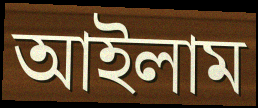
আইলাম